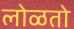
लोळतो